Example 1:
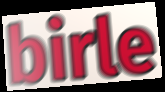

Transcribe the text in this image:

birle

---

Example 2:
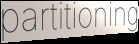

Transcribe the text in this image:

partitioning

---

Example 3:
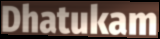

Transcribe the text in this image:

Dhatukam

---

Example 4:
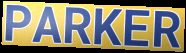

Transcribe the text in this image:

PARKER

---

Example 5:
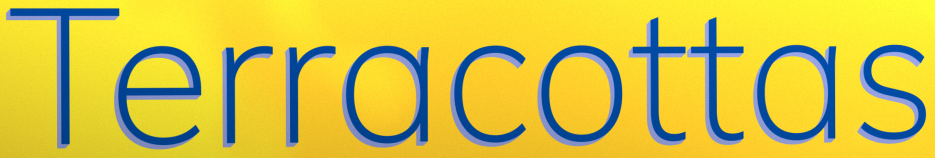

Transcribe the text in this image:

Terracottas